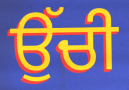
ਉੱਚੀ